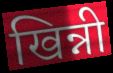
खिन्नी